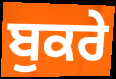
ਬੁਕਰੇ